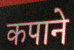
कपाने